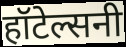
हॉटेल्सनी